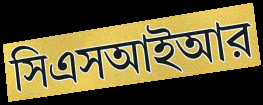
সিএসআইআর